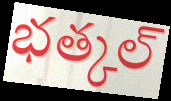
భత్కల్